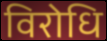
विरोधि